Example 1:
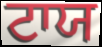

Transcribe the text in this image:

ਟਾਯ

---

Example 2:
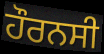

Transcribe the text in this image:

ਹੌਰਨਸੀ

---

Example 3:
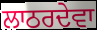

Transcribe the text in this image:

ਲਾਠਰਦੇਵਾ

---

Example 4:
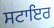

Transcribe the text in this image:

ਸਟਾਇਰ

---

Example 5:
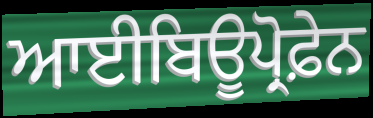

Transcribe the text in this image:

ਆਈਬਿਊਪ੍ਰੋਫ਼ੇਨ